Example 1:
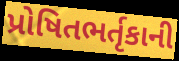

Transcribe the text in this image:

પ્રોષિતભર્તૃકાની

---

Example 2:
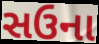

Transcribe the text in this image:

સઉના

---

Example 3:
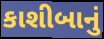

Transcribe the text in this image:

કાશીબાનું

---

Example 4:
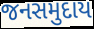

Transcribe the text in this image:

જનસમુદાય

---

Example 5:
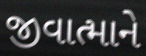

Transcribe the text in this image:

જીવાત્માને